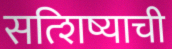
सत्शिष्याची